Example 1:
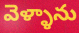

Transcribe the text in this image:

వెళ్ళాను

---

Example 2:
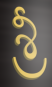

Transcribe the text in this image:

శ్రీ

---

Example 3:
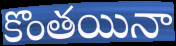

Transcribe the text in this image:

కొంతయినా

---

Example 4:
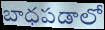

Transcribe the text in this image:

బాధపడాలో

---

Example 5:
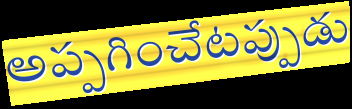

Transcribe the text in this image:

అప్పగించేటప్పుడు